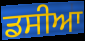
ਡਸੀਆ